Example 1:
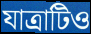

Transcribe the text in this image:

যাত্রাটিও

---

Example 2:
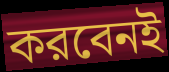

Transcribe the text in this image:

করবেনই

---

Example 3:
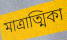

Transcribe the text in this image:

মাত্রাত্মিকা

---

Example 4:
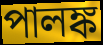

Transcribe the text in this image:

পালঙ্ক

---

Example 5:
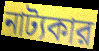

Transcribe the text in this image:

নাট্যকার